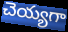
చెయ్యగా